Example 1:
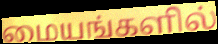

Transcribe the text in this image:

மையங்களில்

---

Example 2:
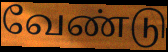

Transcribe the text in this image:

வேண்டு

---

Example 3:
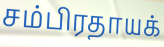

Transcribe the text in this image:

சம்பிரதாயக்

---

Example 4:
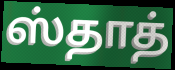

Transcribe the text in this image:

ஸ்தாத்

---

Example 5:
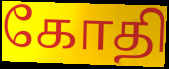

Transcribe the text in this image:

கோதி